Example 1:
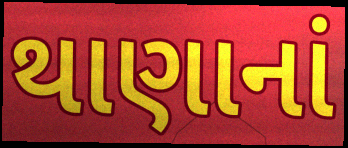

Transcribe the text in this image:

થાણાનાં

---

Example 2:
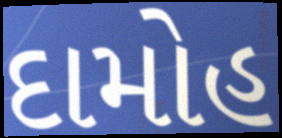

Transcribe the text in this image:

દામોહ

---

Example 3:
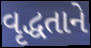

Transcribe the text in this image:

વૃદ્ધતાને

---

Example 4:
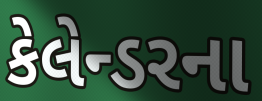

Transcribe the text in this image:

કેલેન્ડરના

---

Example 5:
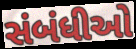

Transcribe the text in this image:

સંબંધીઓ